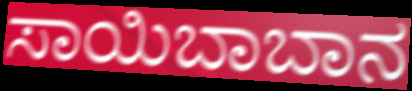
ಸಾಯಿಬಾಬಾನ